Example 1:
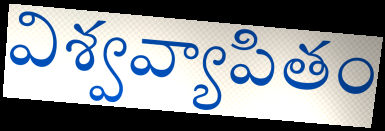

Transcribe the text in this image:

విశ్వవ్యాపితం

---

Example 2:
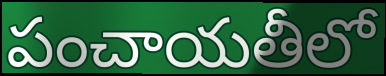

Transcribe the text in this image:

పంచాయతీలో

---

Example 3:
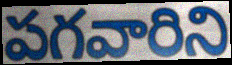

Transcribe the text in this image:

పగవారిని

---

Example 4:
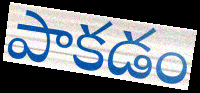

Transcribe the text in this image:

పాకడం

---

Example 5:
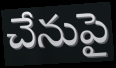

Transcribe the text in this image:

చేనుపై